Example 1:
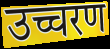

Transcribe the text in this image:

उच्चरण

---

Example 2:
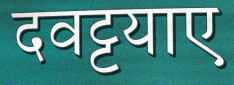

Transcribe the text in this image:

दवट्टयाए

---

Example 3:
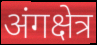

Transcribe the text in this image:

अंगक्षेत्र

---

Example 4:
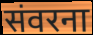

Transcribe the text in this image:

संवरना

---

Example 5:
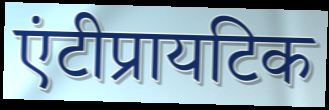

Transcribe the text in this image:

एंटीप्रायटिक